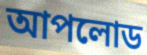
আপলোড